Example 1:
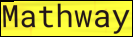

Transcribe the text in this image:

Mathway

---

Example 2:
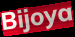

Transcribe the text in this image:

Bijoya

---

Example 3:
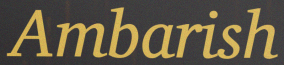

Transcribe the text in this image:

Ambarish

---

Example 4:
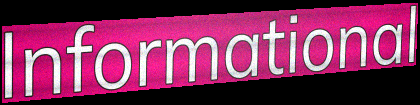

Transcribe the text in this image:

Informational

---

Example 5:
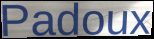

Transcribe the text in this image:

Padoux